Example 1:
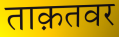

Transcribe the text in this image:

ताक़तवर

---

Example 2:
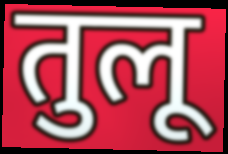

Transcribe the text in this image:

तुलू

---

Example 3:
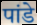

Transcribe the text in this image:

पांडे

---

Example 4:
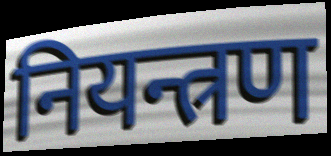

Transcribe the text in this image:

नियन्त्रण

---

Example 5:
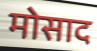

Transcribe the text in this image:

मोसाद